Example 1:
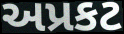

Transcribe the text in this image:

અપ્રકટ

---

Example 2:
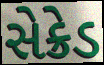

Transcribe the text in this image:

સેક્રેડ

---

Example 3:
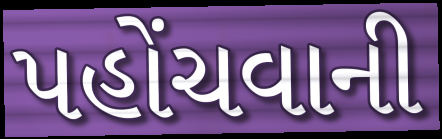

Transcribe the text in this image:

પહોંચવાની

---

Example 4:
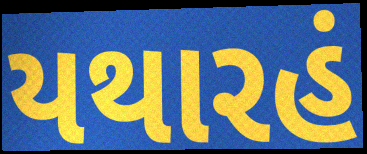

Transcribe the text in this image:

યથારહં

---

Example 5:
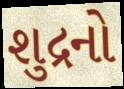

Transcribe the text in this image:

શુદ્રનો